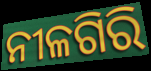
ନୀଳଗିରି